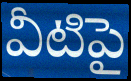
వీటిపై